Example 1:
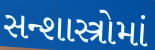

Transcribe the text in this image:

સન્શાસ્ત્રોમાં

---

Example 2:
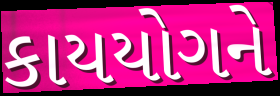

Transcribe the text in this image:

કાયયોગને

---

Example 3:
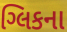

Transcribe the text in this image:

ગ્લિકના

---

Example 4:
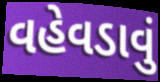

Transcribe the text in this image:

વહેવડાવું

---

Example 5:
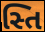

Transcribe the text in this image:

સ્તિ